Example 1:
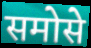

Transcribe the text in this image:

समोसे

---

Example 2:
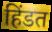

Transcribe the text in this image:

हिंडत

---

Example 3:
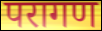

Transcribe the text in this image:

परागण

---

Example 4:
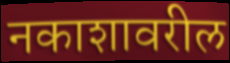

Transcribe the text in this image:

नकाशावरील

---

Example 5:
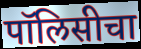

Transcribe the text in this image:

पॉलिसीचा